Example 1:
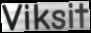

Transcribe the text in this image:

Viksit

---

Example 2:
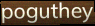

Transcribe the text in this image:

poguthey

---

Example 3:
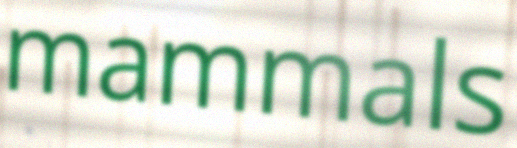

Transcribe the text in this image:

mammals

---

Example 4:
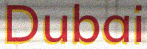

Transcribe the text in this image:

Dubai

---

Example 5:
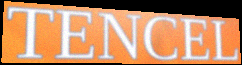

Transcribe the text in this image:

TENCEL